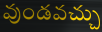
వుండవచ్చు